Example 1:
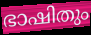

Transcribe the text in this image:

ഭാഷിതും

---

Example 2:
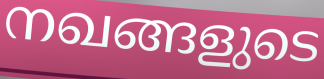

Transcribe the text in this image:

നഖങ്ങളുടെ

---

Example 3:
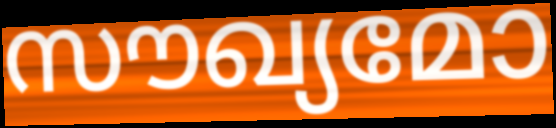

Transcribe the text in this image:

സൗഖ്യമോ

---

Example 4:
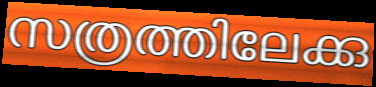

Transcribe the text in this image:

സത്രത്തിലേക്കു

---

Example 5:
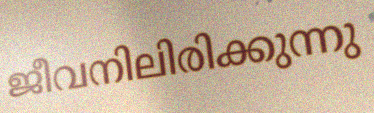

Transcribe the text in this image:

ജീവനിലിരിക്കുന്നു